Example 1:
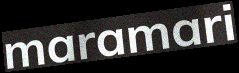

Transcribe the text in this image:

maramari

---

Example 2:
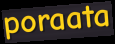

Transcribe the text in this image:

poraata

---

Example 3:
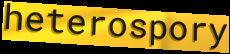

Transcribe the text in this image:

heterospory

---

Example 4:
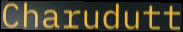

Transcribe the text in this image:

Charudutt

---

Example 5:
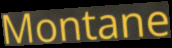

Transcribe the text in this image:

Montane